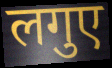
लगुए